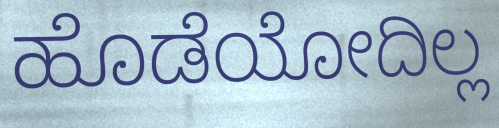
ಹೊಡೆಯೋದಿಲ್ಲ